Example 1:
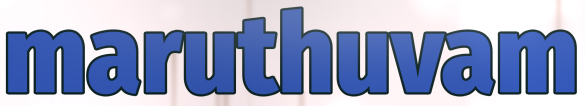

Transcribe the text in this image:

maruthuvam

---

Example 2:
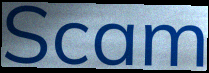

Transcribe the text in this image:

Scam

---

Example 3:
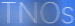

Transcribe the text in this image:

TNOs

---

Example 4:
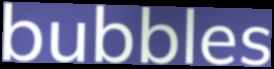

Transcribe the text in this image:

bubbles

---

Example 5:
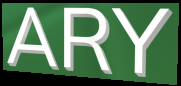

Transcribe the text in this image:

ARY